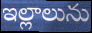
ఇల్లాలును